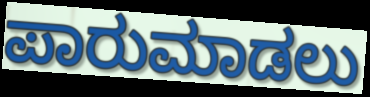
ಪಾರುಮಾಡಲು